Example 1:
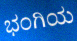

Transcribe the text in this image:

ಭಂಗಿಯ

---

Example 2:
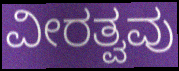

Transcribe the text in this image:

ವೀರತ್ವವು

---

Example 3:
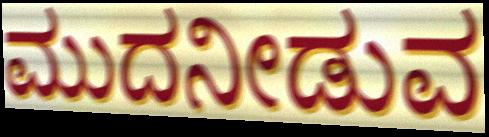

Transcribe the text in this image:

ಮುದನೀಡುವ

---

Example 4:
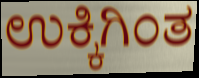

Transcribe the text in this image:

ಉಕ್ಕಿಗಿಂತ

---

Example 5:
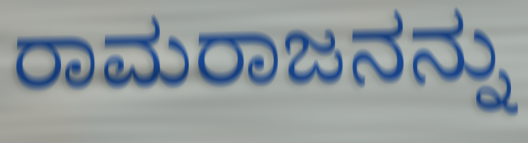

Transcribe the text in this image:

ರಾಮರಾಜನನ್ನು